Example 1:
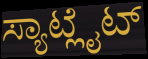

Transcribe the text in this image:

ಸ್ಯಾಟ್ಲೈಟ್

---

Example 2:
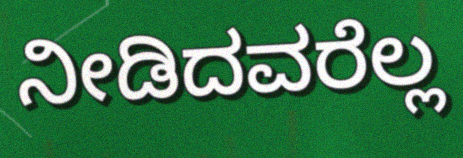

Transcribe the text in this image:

ನೀಡಿದವರೆಲ್ಲ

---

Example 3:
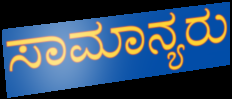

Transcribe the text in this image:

ಸಾಮಾನ್ಯರು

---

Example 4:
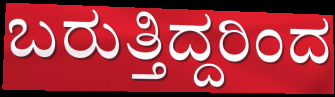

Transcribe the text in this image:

ಬರುತ್ತಿದ್ದರಿಂದ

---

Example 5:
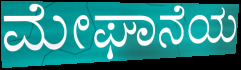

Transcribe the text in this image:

ಮೇಘಾನೆಯ